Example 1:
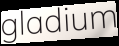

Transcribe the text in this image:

gladium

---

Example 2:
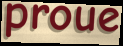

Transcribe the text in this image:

proue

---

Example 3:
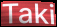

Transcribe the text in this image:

Taki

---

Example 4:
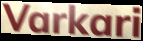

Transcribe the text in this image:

Varkari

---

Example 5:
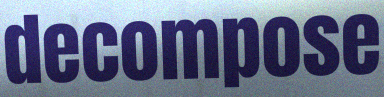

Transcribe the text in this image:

decompose